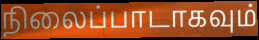
நிலைப்பாடாகவும்